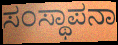
ಸಂಸ್ಥಾಪನಾ